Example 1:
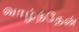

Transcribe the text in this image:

வாழ்ந்தேன்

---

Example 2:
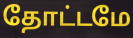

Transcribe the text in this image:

தோட்டமே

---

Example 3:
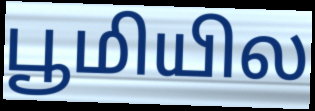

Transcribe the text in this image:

பூமியில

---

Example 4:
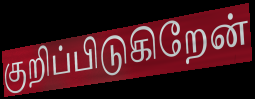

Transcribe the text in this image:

குறிப்பிடுகிறேன்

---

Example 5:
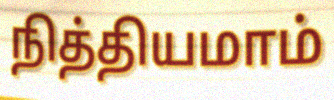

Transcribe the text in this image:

நித்தியமாம்